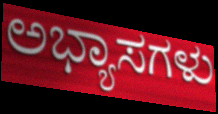
ಅಭ್ಯಾಸಗಳು